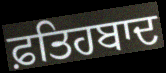
ਫ਼ਤਿਹਬਾਦ